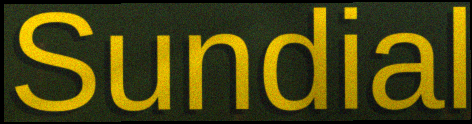
Sundial